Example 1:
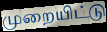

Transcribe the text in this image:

முறையிட்டு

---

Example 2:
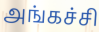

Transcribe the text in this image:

அங்கச்சி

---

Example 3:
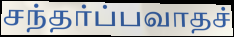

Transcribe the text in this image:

சந்தர்ப்பவாதச்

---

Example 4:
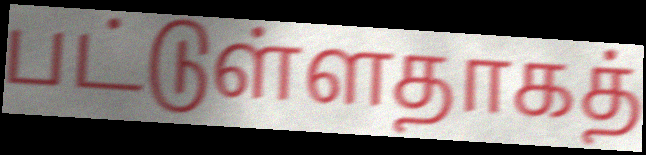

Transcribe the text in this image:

பட்டுள்ளதாகத்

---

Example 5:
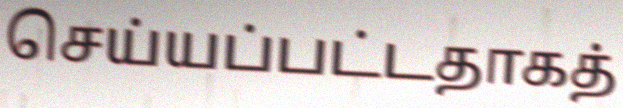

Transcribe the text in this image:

செய்யப்பட்டதாகத்